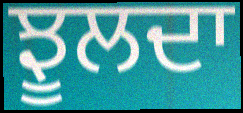
ਝੂਲਦਾ